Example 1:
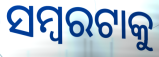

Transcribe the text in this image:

ସମ୍ବରଟାକୁ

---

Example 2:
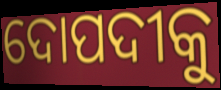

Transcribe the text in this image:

ଦୋପଦୀକୁ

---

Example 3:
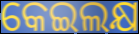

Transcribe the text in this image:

କେଇଲକ୍ଷ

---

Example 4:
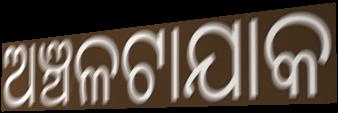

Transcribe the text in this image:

ଅଞ୍ଚଳଟାଯାକ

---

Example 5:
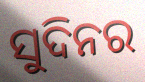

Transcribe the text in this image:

ସୁଦିନର